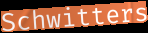
Schwitters